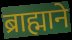
ब्राह्माने